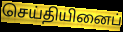
செய்தியினைப்